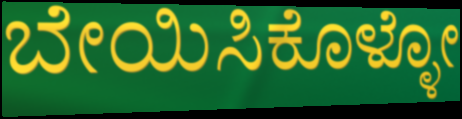
ಬೇಯಿಸಿಕೊಳ್ಳೋ